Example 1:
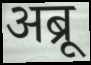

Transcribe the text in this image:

अब्रू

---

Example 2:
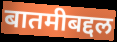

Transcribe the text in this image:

बातमीबद्दल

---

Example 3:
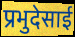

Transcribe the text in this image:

प्रभुदेसाई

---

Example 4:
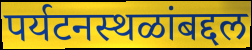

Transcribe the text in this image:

पर्यटनस्थळांबद्दल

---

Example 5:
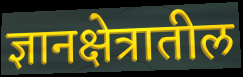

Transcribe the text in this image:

ज्ञानक्षेत्रातील